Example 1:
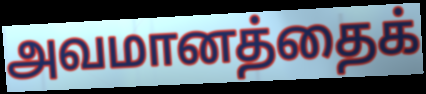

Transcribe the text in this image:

அவமானத்தைக்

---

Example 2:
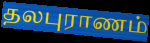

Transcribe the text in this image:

தலபுராணம்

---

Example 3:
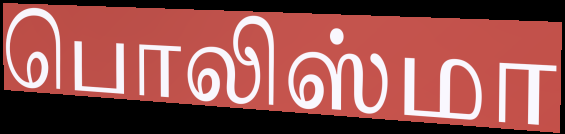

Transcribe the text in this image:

பொலிஸ்மா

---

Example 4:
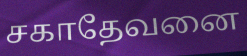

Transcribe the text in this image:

சகாதேவனை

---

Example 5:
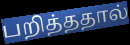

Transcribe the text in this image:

பறித்ததால்